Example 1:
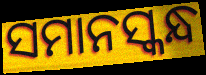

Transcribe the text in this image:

ସମାନସ୍କନ୍ଧ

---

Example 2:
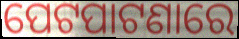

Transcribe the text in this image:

ପେଟପାଟଣାରେ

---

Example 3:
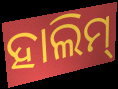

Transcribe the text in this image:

ହାଲିମ୍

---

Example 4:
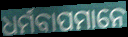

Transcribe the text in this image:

ଧର୍ମବାପମାନେ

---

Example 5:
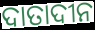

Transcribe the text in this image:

ଦାତାଦୀନ